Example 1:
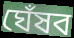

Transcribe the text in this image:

ঘেঁষব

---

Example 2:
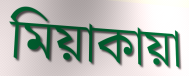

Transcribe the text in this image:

মিয়াকায়া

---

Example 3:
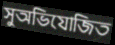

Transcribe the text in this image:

সুঅভিযোজিত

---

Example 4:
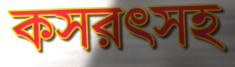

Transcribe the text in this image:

কসরৎসহ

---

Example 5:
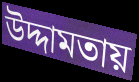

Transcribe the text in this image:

উদ্দামতায়